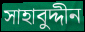
সাহাবুদ্দীন